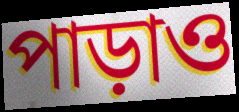
পাড়াও